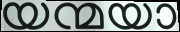
യന്മയാ